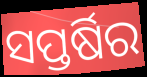
ସପ୍ତର୍ଷିର